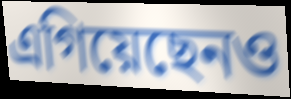
এগিয়েছেনও